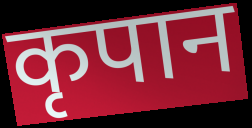
कृपान